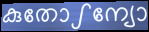
കുതോഽന്യോ